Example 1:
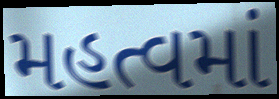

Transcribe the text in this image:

મહત્વમાં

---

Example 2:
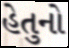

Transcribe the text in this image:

હેતુનો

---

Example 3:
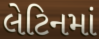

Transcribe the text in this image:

લેટિનમાં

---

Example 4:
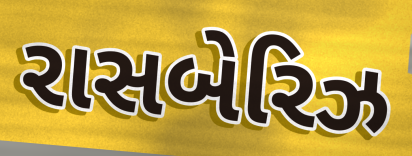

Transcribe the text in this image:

રાસબેરિઝ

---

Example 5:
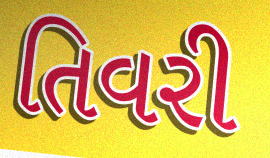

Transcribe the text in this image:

તિવરી